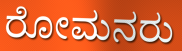
ರೋಮನರು